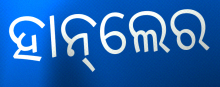
ହାନ୍‌ଲେର